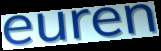
euren